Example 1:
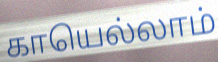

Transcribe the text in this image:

காயெல்லாம்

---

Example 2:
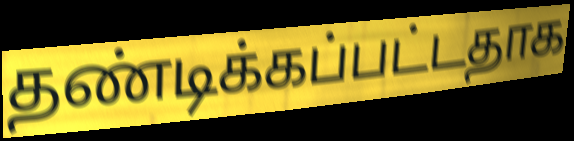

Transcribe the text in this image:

தண்டிக்கப்பட்டதாக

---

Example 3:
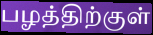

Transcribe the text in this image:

பழத்திற்குள்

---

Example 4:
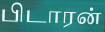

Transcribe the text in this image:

பிடாரன்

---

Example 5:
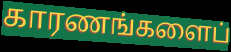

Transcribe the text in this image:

காரணங்களைப்